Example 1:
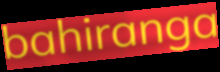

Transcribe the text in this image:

bahiranga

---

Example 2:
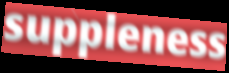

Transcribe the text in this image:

suppleness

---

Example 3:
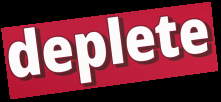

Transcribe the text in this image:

deplete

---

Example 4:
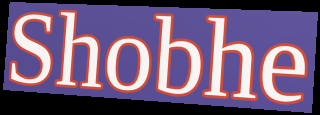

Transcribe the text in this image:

Shobhe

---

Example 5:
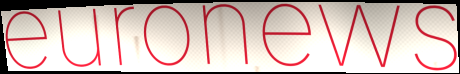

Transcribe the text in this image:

euronews